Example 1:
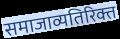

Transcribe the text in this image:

समाजाव्यतिरिक्त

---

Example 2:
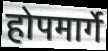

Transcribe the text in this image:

होपमार्गे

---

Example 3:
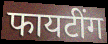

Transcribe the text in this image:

फायटींग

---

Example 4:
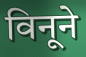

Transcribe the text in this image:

विनूने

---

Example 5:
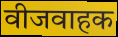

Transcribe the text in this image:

वीजवाहक